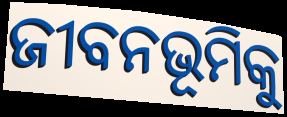
ଜୀବନଭୂମିକୁ